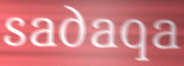
sadaqa